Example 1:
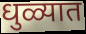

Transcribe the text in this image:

धुळ्यात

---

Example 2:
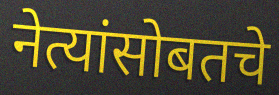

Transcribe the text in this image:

नेत्यांसोबतचे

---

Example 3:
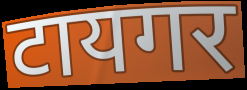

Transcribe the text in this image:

टायगर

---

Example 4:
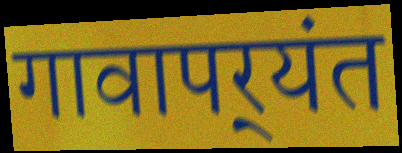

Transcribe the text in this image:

गावापर्यंत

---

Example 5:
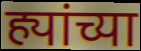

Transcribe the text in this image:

ह्यांच्या